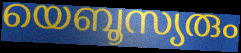
യെബൂസ്യരും